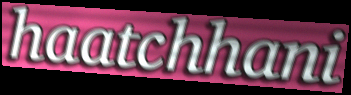
haatchhani